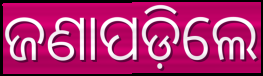
ଜଣାପଡ଼ିଲେ